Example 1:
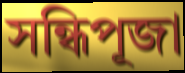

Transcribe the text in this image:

সন্ধিপূজা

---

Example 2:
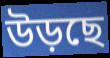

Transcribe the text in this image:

উড়ছে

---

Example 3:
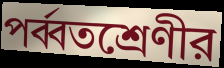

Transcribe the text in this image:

পর্ব্বতশ্রেণীর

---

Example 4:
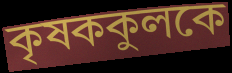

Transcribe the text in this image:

কৃষককুলকে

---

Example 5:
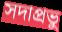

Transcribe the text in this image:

সদাপ্রভু